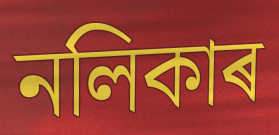
নলিকাৰ